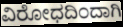
ವಿರೋಧದಿಂದಾಗಿ